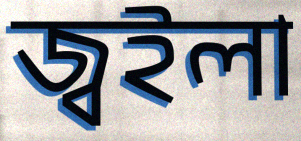
জ্বইলা